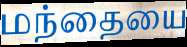
மந்தையை